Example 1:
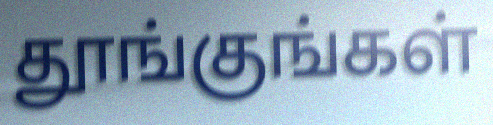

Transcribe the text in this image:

தூங்குங்கள்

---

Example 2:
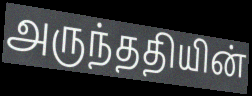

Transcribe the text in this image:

அருந்ததியின்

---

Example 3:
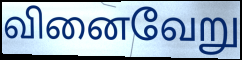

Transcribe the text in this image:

வினைவேறு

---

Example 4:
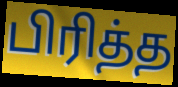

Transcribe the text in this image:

பிரித்த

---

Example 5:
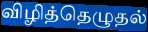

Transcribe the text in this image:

விழித்தெழுதல்